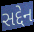
સદ્દેન